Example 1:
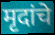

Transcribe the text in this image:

मृदांचे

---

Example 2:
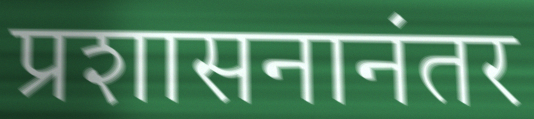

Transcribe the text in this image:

प्रशासनानंतर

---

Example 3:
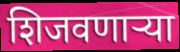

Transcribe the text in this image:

शिजवणाऱ्या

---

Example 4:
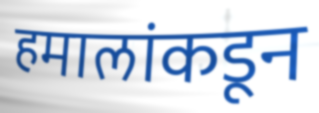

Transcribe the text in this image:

हमालांकडून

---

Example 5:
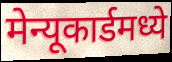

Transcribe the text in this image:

मेन्यूकार्डमध्ये